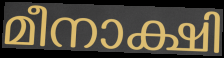
മീനാക്ഷി